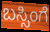
ಬಸ್ಸಿಂಗೆ